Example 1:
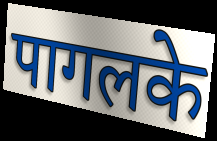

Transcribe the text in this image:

पागलके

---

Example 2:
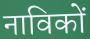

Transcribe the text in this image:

नाविकों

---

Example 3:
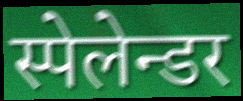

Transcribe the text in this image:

स्पेलेन्डर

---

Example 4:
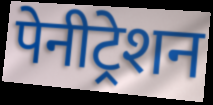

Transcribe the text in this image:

पेनीट्रेशन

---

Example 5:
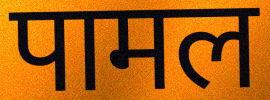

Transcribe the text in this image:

पामल